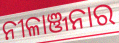
ନୀଳାଞ୍ଜନାର